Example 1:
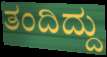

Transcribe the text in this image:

ತಂದಿದ್ದು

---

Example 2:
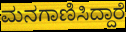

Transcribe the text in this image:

ಮನಗಾಣಿಸಿದ್ದಾರೆ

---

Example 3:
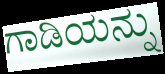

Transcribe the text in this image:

ಗಾಡಿಯನ್ನು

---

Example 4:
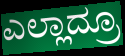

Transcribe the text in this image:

ಎಲ್ಲಾದ್ರೂ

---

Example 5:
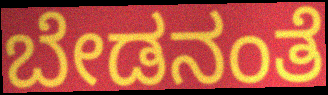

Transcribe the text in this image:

ಬೇಡನಂತೆ